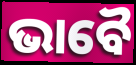
ଭାବୈ